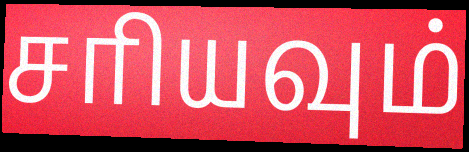
சரியவும்